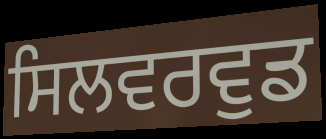
ਸਿਲਵਰਵੁਡ